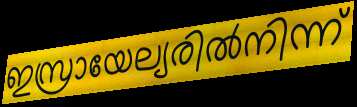
ഇസ്രായേല്യരിൽനിന്ന്